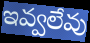
ఇవ్వలేవు